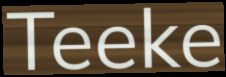
Teeke